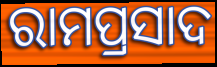
ରାମପ୍ରସାଦ